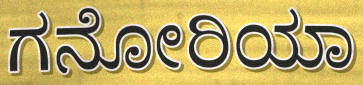
ಗನೋರಿಯಾ